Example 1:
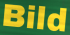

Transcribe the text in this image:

Bild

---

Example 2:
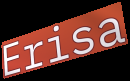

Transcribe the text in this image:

Erisa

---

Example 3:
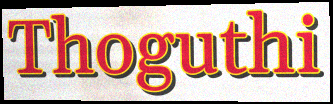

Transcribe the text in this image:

Thoguthi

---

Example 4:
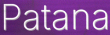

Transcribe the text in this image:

Patana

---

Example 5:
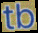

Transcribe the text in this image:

tb